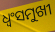
ଧ୍ୱଂସମୁଖୀ